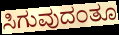
ಸಿಗುವುದಂತೂ